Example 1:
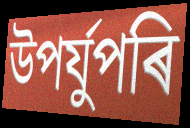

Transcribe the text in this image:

উপৰ্যুপৰি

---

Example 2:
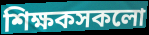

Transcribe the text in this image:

শিক্ষকসকলো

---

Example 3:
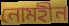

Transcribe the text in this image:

নোমহীন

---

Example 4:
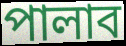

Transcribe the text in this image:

পালাব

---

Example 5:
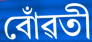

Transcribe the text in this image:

বোঁৱতী